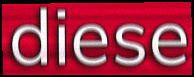
diese